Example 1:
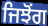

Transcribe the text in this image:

ਜਿਝੋਂਗ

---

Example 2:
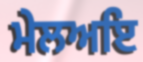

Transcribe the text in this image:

ਮੇਲਅਇ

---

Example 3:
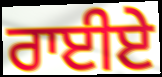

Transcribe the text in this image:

ਰਾਈਏ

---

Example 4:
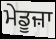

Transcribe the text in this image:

ਮੇਡੂਜ਼ਾ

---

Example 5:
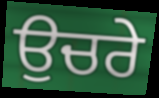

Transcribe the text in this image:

ਉਚਰੇ